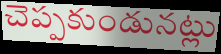
చెప్పకుండునట్లు